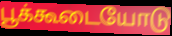
பூக்கூடையோடு